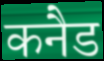
कनैड